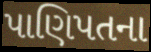
પાણિપતના